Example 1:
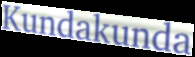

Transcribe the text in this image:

Kundakunda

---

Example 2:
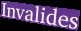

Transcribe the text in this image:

Invalides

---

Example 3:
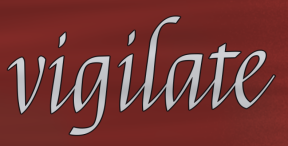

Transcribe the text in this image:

vigilate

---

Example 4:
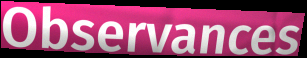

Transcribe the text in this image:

Observances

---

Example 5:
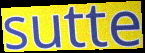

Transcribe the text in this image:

sutte